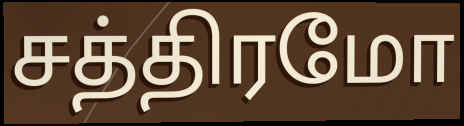
சத்திரமோ